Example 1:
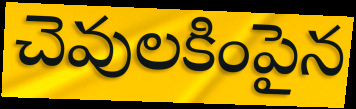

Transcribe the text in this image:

చెవులకింపైన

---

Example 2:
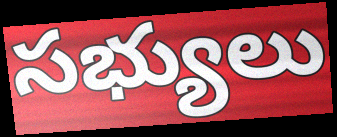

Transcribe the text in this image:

సభ్యులు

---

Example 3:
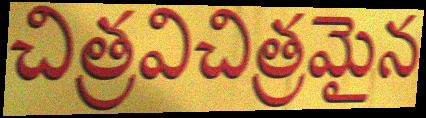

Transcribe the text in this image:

చిత్రవిచిత్రమైన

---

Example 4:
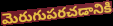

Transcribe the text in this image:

మెరుగుపరచడానికి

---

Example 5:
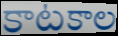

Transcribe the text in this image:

కాటకాల